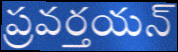
ప్రవర్తయన్